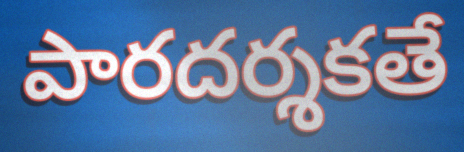
పారదర్శకతే